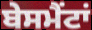
ਬੇਸਮੈਂਟਾਂ